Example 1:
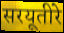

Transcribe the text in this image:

सरयूतीरे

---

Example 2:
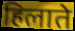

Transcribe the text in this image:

हिलाते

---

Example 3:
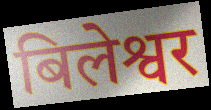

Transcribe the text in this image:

बिलेश्वर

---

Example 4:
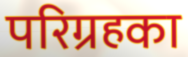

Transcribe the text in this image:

परिग्रहका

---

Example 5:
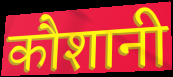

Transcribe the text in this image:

कौशानी